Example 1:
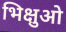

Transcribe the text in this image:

भिक्षुओ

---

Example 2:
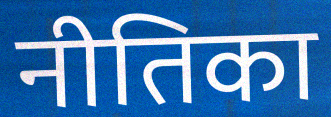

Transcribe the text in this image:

नीतिका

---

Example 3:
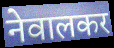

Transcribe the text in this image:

नेवालकर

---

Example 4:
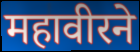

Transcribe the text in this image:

महावीरने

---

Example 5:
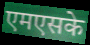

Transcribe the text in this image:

एमएसके